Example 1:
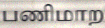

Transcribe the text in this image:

பணிமாற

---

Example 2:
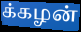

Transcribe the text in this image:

க்கழன்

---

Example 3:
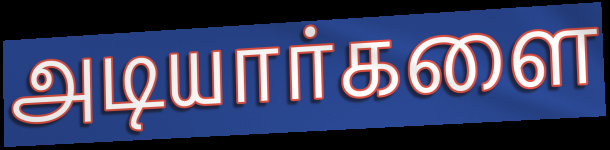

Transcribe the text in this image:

அடியார்களை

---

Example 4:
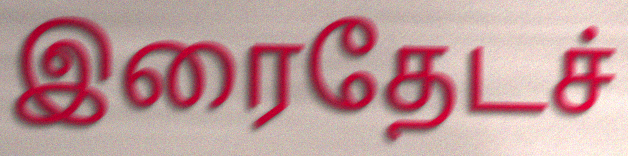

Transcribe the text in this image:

இரைதேடச்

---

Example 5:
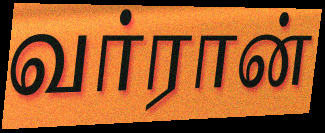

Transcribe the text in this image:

வர்ரான்